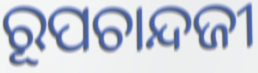
ରୂପଚାନ୍ଦଜୀ